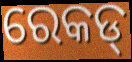
ରେକଡ୍